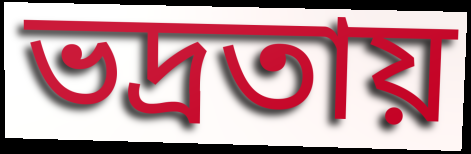
ভদ্রতায়